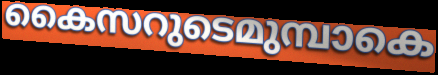
കൈസറുടെമുമ്പാകെ